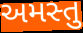
અમસ્તુ